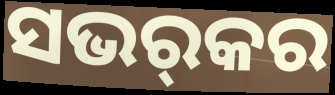
ସଭର୍‌କର